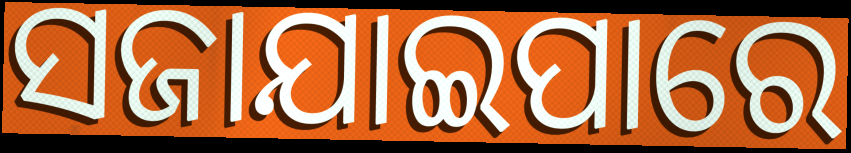
ସଜାଯାଇପାରେ